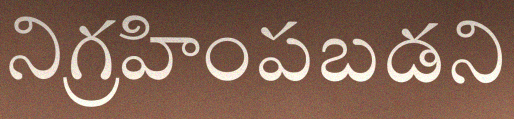
నిగ్రహింపబడని